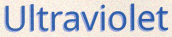
Ultraviolet